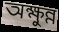
অক্ষুন্ন